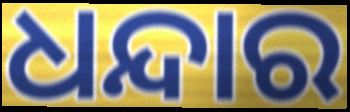
ଧନ୍ଦାର